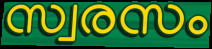
സ്വരസം